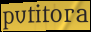
putitora